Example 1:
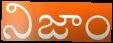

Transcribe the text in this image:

నిజాం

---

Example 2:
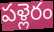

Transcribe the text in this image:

పళ్లెరం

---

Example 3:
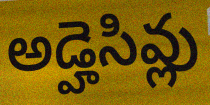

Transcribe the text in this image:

అడ్హెసివ్లు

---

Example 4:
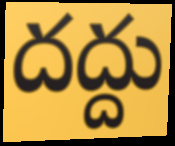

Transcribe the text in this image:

దద్దు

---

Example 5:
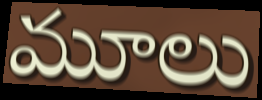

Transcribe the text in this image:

మూలు